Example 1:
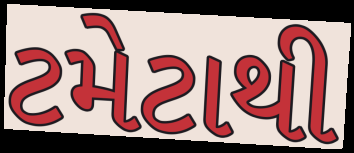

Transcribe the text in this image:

ટમેટાથી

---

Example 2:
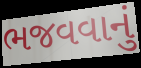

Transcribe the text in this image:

ભજવવાનું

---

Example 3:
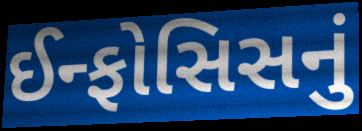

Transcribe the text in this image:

ઈન્ફોસિસનું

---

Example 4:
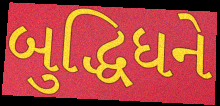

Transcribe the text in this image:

બુદ્ધિધને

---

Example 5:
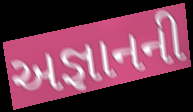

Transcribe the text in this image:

અજ્ઞાનની